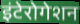
इंटेरोगेशन